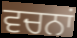
ਵਚਨਾਂ